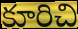
కూరిచి